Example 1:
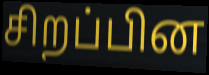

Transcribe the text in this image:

சிறப்பின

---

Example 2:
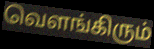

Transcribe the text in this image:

வெளங்கிரும்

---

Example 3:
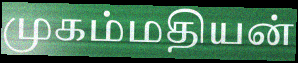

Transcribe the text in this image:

முகம்மதியன்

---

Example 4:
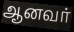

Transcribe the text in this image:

ஆனவர்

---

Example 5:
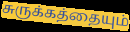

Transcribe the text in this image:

சுருக்கத்தையும்